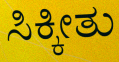
ಸಿಕ್ಕೀತು